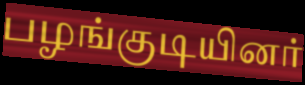
பழங்குடியினர்